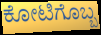
ಕೋಟಿಗೊಬ್ಬ